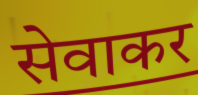
सेवाकर